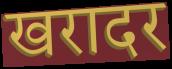
खरादर